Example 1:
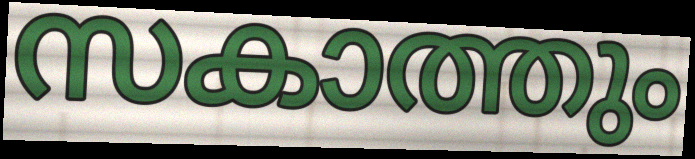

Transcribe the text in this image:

സകാത്തും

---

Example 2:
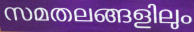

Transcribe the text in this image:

സമതലങ്ങളിലും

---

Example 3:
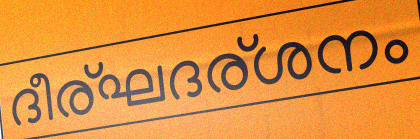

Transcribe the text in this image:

ദീര്ഘദര്ശനം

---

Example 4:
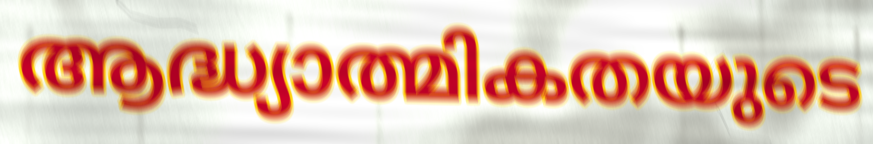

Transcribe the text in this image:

ആദ്ധ്യാത്മികതയുടെ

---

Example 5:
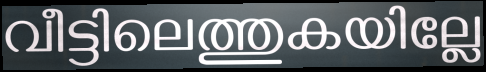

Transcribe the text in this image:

വീട്ടിലെത്തുകയില്ലേ